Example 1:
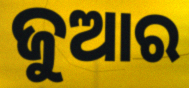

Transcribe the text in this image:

ଜୁଆର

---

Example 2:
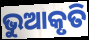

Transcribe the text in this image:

ଭୁଆକୃତି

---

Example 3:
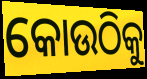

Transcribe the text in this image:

କୋଉଠିକୁ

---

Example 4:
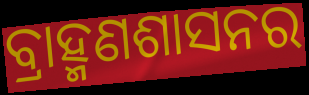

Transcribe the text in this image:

ବ୍ରାହ୍ମଣଶାସନର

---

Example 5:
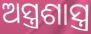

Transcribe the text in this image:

ଅସ୍ତ୍ରଶାସ୍ତ୍ର